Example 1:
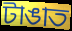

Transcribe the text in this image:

টাঙাত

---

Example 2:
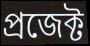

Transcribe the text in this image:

প্রজেক্ট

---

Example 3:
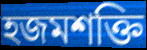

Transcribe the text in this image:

হজমশক্তি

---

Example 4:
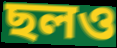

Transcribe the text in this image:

ছলও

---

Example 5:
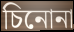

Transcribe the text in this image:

চিনোনা